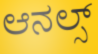
ಆನಲ್ಸ್